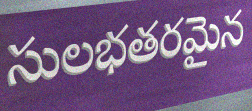
సులభతరమైన